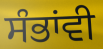
ਸੰਭਾਂਵੀ